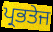
ਪ੍ਰਭਤੇਜ